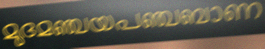
മുദമഞ്ചയപഞ്ചബാണ